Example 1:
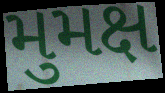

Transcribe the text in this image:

મુમક્ષ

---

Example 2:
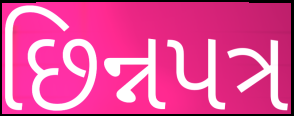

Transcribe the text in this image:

છિન્નપત્ર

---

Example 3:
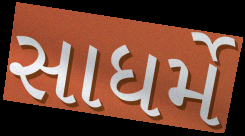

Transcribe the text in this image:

સાધર્મે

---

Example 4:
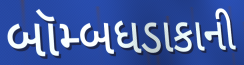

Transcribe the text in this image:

બૉમ્બધડાકાની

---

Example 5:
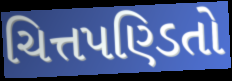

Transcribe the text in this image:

ચિત્તપણ્ડિતો